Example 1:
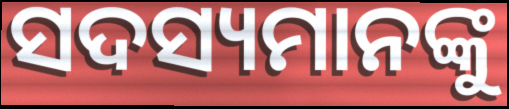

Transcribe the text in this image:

ସଦସ୍ୟମାନଙ୍କୁ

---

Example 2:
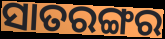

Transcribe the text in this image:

ସାତରଙ୍ଗର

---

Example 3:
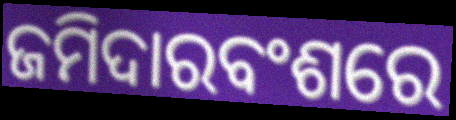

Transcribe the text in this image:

ଜମିଦାରବଂଶରେ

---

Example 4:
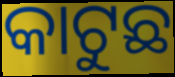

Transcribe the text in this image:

କାଟୁଛ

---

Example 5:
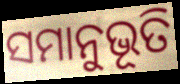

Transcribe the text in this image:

ସମାନୁଭୂତି